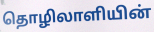
தொழிலாளியின்